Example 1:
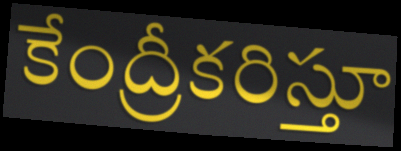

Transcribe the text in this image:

కేంద్రీకరిస్తూ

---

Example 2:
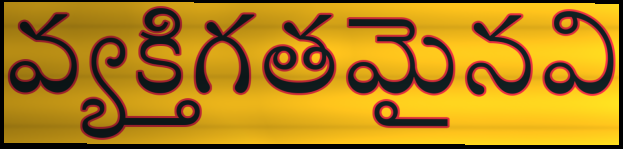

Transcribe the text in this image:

వ్యక్తిగతమైనవి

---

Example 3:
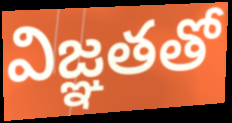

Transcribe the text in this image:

విజ్ఞతతో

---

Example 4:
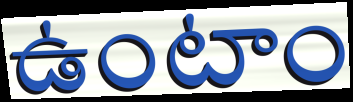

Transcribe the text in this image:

ఉంటాం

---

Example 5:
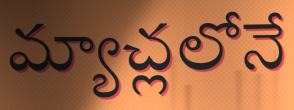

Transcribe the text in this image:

మ్యాచ్లలోనే